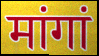
मांगां